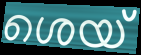
ശെയ്